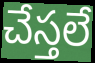
చేస్తలే